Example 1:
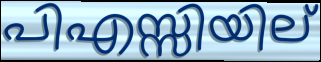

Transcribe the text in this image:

പിഎസ്സിയില്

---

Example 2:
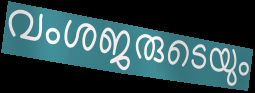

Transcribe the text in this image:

വംശജരുടെയും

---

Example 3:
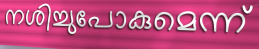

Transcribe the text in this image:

നശിച്ചുപോകുമെന്ന്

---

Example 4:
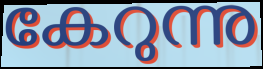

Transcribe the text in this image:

കേറുന്നു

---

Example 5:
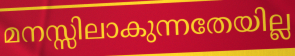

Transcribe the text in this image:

മനസ്സിലാകുന്നതേയില്ല